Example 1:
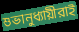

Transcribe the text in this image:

শুভানুধ্যায়ীরাই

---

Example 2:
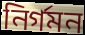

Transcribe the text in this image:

নির্গমন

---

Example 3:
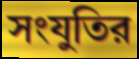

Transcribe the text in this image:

সংযুতির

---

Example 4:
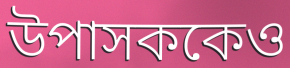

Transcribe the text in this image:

উপাসককেও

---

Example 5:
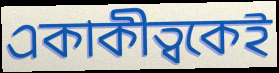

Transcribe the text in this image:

একাকীত্বকেই